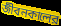
জীবনকালের